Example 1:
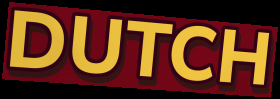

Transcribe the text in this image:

DUTCH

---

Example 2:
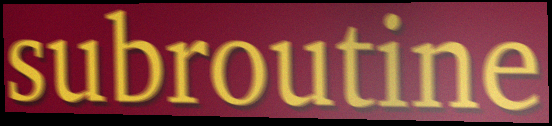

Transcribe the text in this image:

subroutine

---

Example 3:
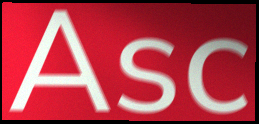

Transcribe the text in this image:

Asc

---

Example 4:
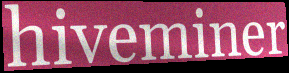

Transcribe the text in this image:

hiveminer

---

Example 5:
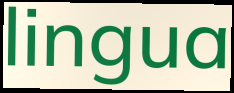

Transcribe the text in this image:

lingua